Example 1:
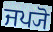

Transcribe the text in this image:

ਜਪ੍ਯੋ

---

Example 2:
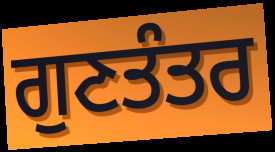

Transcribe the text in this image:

ਗੁਣਤੰਤਰ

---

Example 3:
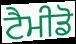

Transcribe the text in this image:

ਟੈਮੀਡੋ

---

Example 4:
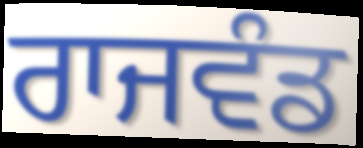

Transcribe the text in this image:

ਰਾਜਵੰਡ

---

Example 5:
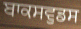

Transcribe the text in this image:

ਬਾਕਸਵੁਡਸ